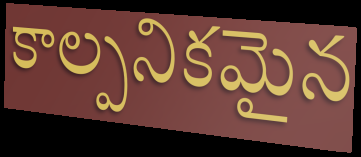
కాల్పనికమైన